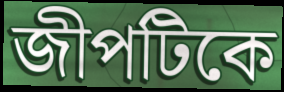
জীপটিকে